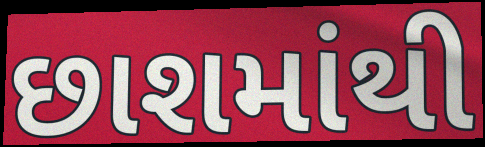
છાશમાંથી